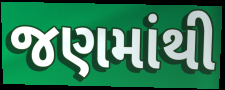
જણમાંથી